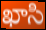
ఖాసి